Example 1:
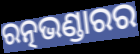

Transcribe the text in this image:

ରତ୍ନଭଣ୍ଡାରର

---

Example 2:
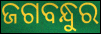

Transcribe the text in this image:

ଜଗବନ୍ଧୁର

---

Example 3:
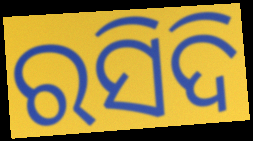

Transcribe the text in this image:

ରସିଦି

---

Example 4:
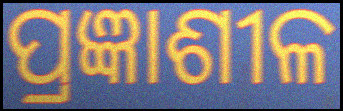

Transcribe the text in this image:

ପ୍ରଜ୍ଞାଶୀଳ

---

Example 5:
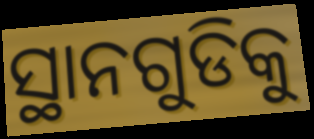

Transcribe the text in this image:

ସ୍ଥାନଗୁଡିକୁ